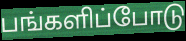
பங்களிப்போடு